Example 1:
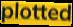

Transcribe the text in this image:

plotted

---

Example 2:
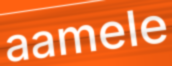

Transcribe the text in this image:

aamele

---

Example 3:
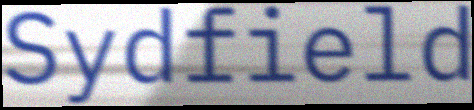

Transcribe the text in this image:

Sydfield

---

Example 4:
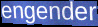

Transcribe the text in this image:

engender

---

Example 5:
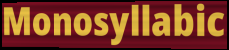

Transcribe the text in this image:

Monosyllabic